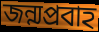
জন্মপ্রবাহ